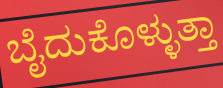
ಬೈದುಕೊಳ್ಳುತ್ತಾ